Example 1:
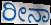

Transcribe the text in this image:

ರೀನಾ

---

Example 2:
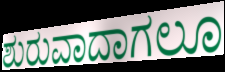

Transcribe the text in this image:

ಶುರುವಾದಾಗಲೂ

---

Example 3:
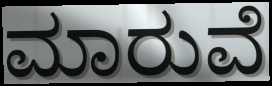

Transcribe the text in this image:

ಮಾರುವೆ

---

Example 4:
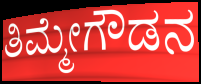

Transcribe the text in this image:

ತಿಮ್ಮೇಗೌಡನ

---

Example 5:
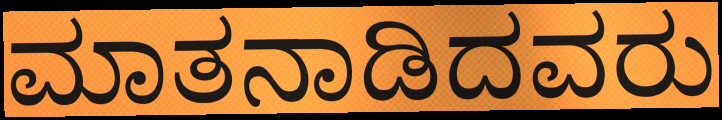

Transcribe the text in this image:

ಮಾತನಾಡಿದವರು